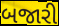
બજારી